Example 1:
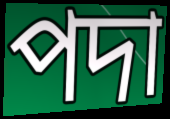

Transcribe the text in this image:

পদা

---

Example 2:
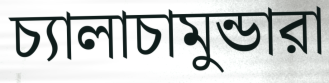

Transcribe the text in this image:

চ্যালাচামুন্ডারা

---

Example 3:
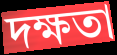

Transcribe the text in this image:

দক্ষতা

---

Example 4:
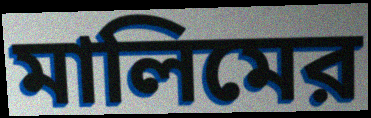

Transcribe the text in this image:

মালিমের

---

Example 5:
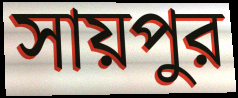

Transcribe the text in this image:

সায়পুর